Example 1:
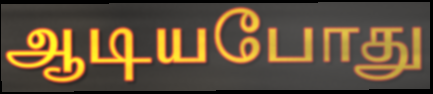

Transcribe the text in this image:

ஆடியபோது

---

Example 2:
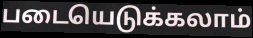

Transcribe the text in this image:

படையெடுக்கலாம்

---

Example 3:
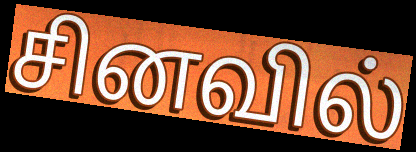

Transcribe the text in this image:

சினவில்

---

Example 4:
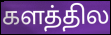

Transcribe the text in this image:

களத்தில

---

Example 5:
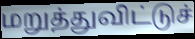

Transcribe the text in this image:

மறுத்துவிட்டுச்